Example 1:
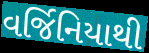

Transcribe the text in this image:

વર્જિનિયાથી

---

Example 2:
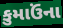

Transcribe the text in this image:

કુમાઉંના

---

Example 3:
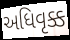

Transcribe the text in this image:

અધિવૃક્ક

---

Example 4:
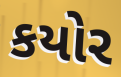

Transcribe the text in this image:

કયોર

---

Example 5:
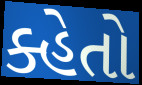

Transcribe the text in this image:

ક્હેતો